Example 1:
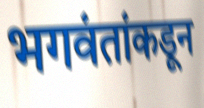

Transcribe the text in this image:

भगवंतांकडून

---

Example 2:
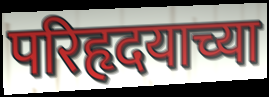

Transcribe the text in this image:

परिहृदयाच्या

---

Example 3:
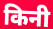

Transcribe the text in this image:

किनी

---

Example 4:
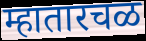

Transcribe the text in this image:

म्हातारचळ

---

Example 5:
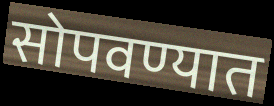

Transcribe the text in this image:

सोपवण्यात